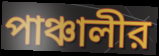
পাঞ্চালীর